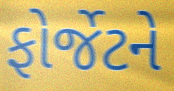
ફોર્જેટને